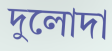
দুলোদা